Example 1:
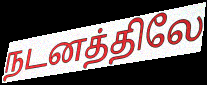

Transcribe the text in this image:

நடனத்திலே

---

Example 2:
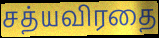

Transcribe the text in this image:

சத்யவிரதை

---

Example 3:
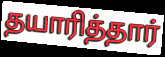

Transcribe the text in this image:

தயாரித்தார்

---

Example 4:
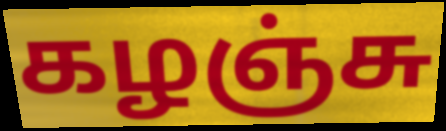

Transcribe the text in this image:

கழஞ்சு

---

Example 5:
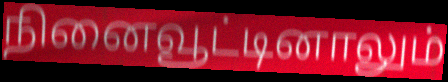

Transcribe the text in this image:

நினைவூட்டினாலும்